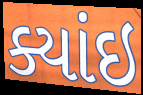
ક્યાંઇ